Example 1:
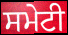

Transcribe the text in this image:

ਸਮੇਟੀ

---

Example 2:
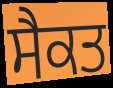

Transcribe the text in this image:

ਸੈਕਤ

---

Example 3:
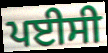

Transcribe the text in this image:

ਪਈਸੀ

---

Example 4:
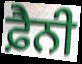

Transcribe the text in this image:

ਫ਼ੈਨੀ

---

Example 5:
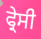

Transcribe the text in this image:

ਫ੍ਰੇਸੀ